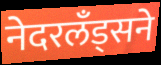
नेदरलँड्सने